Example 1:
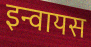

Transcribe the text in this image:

इन्वायस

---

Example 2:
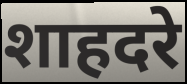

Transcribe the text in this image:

शाहदरे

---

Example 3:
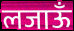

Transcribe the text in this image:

लजाऊँ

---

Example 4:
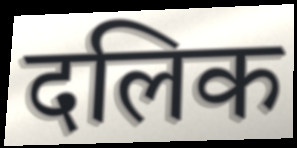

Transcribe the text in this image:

दलिक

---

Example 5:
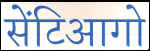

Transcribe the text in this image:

सेंटिआगो